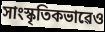
সাংস্কৃতিকভাৱেও